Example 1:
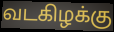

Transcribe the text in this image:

வடகிழக்கு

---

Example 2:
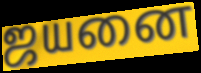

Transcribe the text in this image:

ஜயனை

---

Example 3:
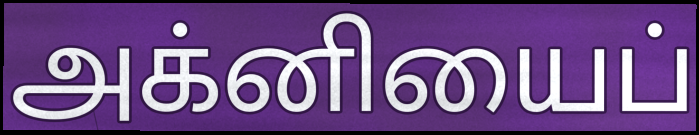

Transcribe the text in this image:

அக்னியைப்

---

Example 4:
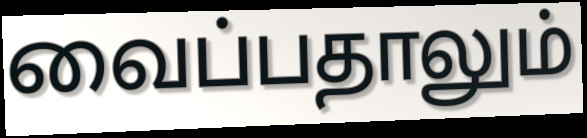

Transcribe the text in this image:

வைப்பதாலும்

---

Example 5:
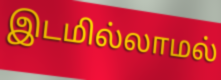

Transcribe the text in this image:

இடமில்லாமல்